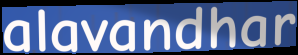
alavandhar